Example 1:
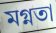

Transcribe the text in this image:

মগ্নতা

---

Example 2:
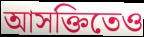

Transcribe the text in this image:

আসক্তিতেও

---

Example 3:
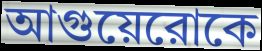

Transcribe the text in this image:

আগুয়েরোকে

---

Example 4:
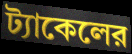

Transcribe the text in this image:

ট্যাকেলের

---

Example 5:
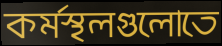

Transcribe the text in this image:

কর্মস্থলগুলোতে